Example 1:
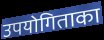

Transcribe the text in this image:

उपयोगिताका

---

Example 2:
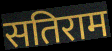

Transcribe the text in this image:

सतिराम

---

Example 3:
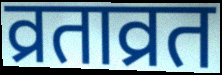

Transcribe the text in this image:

व्रताव्रत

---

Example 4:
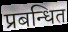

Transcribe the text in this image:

प्रबन्धित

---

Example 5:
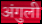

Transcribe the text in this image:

अंगुली